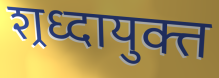
श्रध्दायुक्त